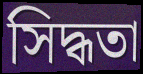
সিদ্ধতা